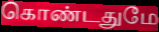
கொண்டதுமே